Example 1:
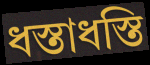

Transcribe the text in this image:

ধস্তাধস্তি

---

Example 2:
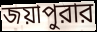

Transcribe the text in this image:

জয়াপুরার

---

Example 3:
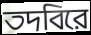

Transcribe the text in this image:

তদবিরে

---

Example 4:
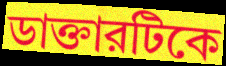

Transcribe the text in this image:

ডাক্তারটিকে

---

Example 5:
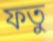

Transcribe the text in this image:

ফতু